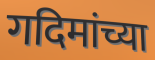
गदिमांच्या